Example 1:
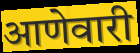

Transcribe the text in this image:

आणेवारी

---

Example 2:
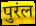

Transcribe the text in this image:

पुरंल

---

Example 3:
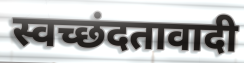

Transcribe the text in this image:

स्वच्छंदतावादी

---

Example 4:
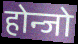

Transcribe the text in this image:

होन्जो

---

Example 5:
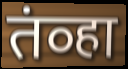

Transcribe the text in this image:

तंव्हा